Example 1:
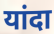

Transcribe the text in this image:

यांदा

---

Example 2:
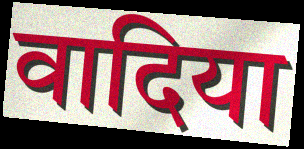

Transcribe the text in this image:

वादिया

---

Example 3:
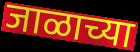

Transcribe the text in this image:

जाळाच्या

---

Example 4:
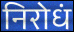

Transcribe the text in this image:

निरोधं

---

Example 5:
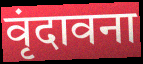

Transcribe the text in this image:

वृंदावना